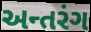
અન્તરંગ